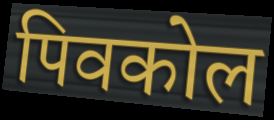
पिवकोल